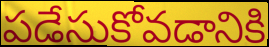
పడేసుకోవడానికి